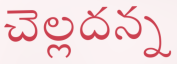
చెల్లదన్న